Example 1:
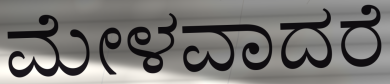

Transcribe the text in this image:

ಮೇಳವಾದರೆ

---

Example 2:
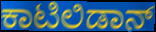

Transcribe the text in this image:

ಕಾಟಿಲಿಡಾನ್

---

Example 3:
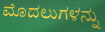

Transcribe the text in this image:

ಮೊದಲುಗಳನ್ನು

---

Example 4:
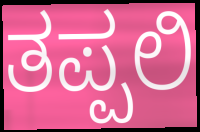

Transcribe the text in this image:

ತಪ್ಪಲಿ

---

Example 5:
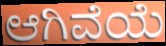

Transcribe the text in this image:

ಆಗಿವೆಯೆ